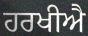
ਹਰਖੀਐ